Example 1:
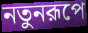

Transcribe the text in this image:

নতুনরূপে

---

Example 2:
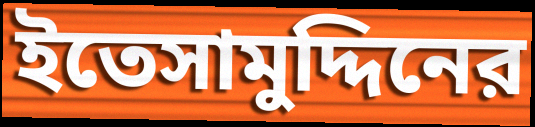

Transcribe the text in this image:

ইতেসামুদ্দিনের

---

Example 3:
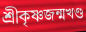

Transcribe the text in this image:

শ্রীকৃষ্ণজন্মখণ্ড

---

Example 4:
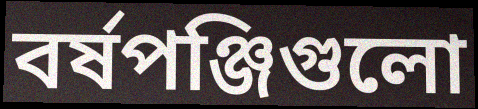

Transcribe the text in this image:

বর্ষপঞ্জিগুলো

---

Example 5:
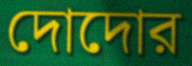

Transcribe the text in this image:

দোদোর